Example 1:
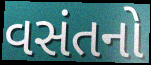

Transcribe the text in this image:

વસંતનો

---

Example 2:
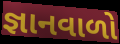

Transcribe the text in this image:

જ્ઞાનવાળો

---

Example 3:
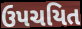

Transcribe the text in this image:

ઉપચયિત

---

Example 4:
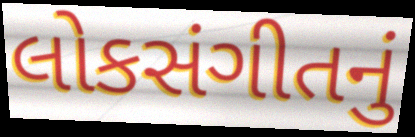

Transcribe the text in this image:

લોકસંગીતનું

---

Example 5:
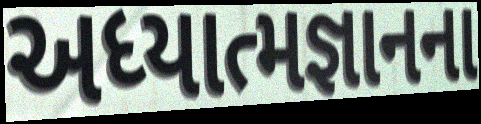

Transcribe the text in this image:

અધ્યાત્મજ્ઞાનના